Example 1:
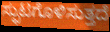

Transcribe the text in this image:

ಸ್ಫುಟಗೊಳಿಸುತ್ತದೆ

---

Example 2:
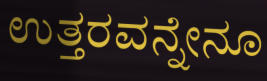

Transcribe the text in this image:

ಉತ್ತರವನ್ನೇನೂ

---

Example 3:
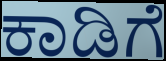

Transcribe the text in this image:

ಕಾಡಿಗೆ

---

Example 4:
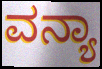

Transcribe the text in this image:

ವನ್ಯಾ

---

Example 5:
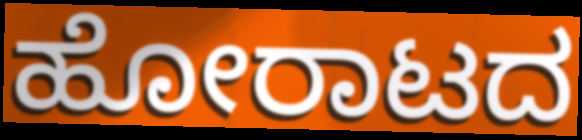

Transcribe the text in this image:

ಹೋರಾಟದ